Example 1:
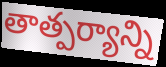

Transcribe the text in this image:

తాత్పర్యాన్ని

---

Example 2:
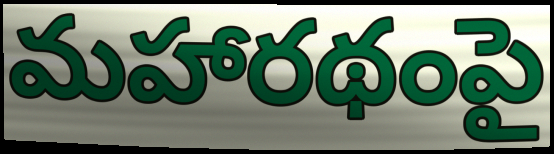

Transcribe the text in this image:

మహారథంపై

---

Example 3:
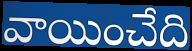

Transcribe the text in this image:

వాయించేది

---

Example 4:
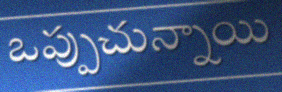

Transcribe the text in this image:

ఒప్పుచున్నాయి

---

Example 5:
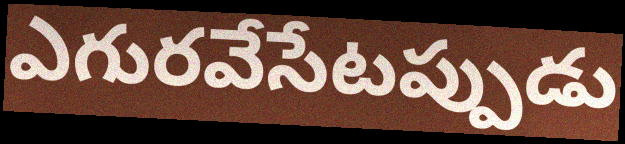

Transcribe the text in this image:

ఎగురవేసేటప్పుడు